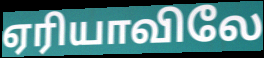
ஏரியாவிலே